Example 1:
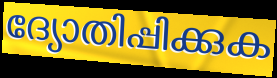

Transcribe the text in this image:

ദ്യോതിപ്പിക്കുക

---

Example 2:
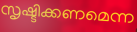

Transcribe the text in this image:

സൃഷ്ടിക്കണമെന്ന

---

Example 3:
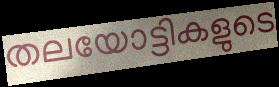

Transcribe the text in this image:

തലയോട്ടികളുടെ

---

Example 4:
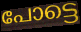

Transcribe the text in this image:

പോട്ടെ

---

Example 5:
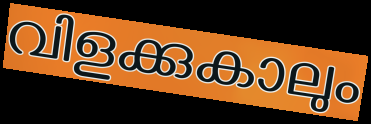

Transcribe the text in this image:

വിളക്കുകാലും